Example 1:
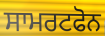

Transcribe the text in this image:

ਸਾਮਰਟਫੋਨ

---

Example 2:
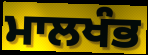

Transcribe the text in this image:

ਮਾਲਖੰਭ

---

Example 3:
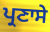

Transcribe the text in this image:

ਪ੍ਰਣਾਸੇ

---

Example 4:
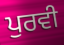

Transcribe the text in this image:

ਪੁਰਵੀ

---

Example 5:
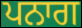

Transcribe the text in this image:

ਪਨਾਗ